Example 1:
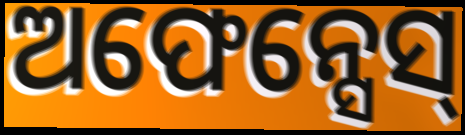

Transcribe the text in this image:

ଅଫେନ୍ସେସ୍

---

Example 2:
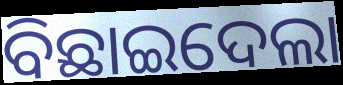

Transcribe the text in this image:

ବିଛାଇଦେଲା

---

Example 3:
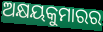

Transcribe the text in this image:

ଅକ୍ଷୟକୁମାରର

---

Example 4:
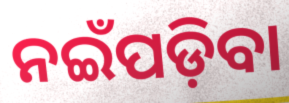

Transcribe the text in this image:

ନଇଁପଡ଼ିବା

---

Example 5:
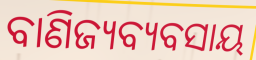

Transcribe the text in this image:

ବାଣିଜ୍ୟବ୍ୟବସାୟ